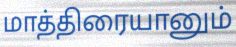
மாத்திரையானும்